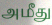
அமீது